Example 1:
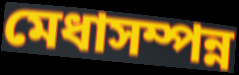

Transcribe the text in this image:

মেধাসম্পন্ন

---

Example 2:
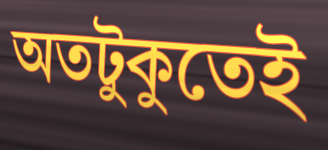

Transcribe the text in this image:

অতটুকুতেই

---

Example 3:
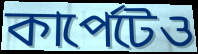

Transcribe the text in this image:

কার্পেটেও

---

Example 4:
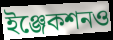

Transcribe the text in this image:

ইঞ্জেকশনও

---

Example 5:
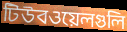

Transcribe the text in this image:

টিউবওয়েলগুলি